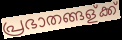
പ്രഭാതങ്ങള്ക്ക്